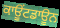
ਕਾਊਂਟਡਾਊਨ